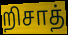
றிசாத்